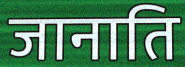
जानाति